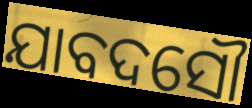
ଯାବଦସୌ